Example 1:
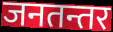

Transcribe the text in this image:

जनतन्तर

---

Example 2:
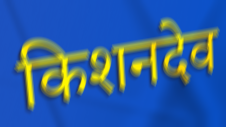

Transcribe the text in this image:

किशनदेव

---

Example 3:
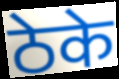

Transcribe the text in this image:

ठेके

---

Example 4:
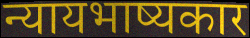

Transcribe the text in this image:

न्यायभाष्यकार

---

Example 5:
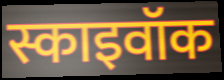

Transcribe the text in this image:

स्काइवॉक